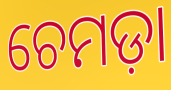
ଚେମଡ଼ା